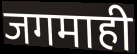
जगमाही